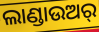
ଲାଣ୍ଡାଉଅର୍